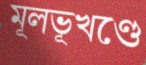
মূলভূখণ্ডে